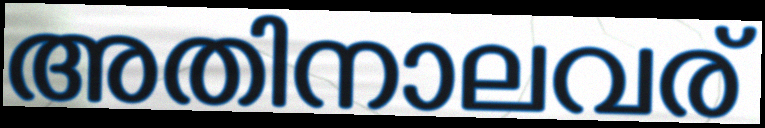
അതിനാലവര്